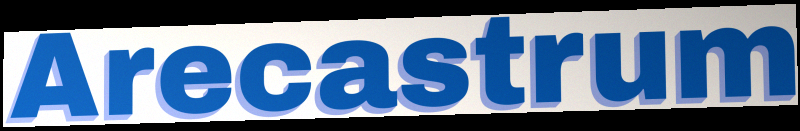
Arecastrum